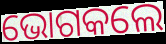
ଭୋଗକଲେ